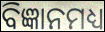
ବିଜ୍ଞାନମଧ୍ୟ